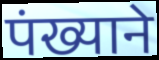
पंख्याने